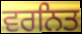
ਵਰਨਿਤ